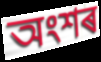
অংশৰ